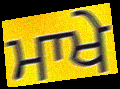
ਮਾਖੇ